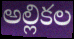
అల్లికల